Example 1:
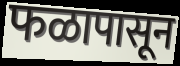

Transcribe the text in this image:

फळापासून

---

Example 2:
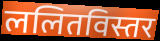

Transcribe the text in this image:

ललितविस्तर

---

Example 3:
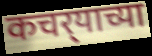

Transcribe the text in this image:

कचर्‍याच्या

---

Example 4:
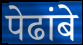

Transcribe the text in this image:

पेढांबे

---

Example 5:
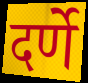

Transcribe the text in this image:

दर्णे